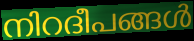
നിറദീപങ്ങൾ